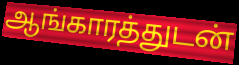
ஆங்காரத்துடன்